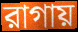
রাগায়